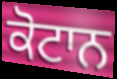
ਕੋਟਾਨ